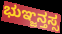
ಭುಞ್ಜನ್ತಸ್ಸ